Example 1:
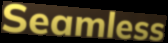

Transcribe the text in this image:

Seamless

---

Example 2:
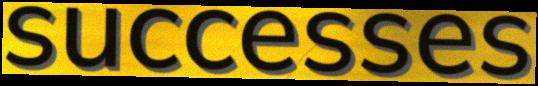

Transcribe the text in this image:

successes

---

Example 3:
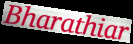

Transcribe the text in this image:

Bharathiar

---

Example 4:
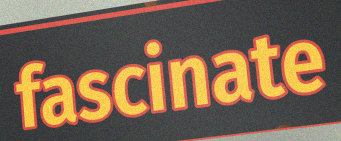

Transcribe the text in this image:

fascinate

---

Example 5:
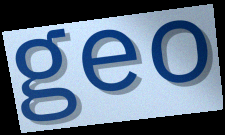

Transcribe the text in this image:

geo